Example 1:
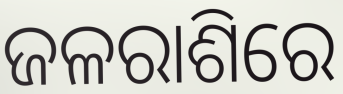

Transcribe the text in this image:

ଜଳରାଶିରେ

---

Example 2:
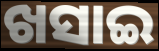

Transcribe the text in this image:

ଖସାଇ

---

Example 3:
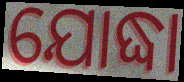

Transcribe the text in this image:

ଯୋଦ୍ଧା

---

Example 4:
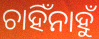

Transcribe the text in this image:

ଚାହିଁନାହୁଁ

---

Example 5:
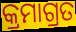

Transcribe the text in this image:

କ୍ରମାଗ୍ରତ